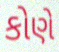
કોણે